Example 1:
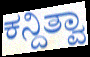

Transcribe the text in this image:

ಕನ್ದಿತ್ವಾ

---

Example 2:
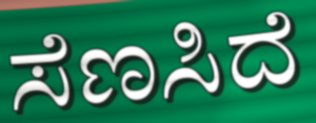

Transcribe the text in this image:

ಸೆಣಸಿದೆ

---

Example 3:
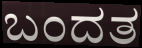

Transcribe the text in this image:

ಬಂದತ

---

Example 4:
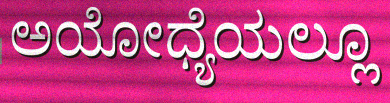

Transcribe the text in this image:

ಅಯೋಧ್ಯೆಯಲ್ಲೂ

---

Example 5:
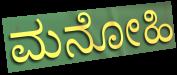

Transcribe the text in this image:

ಮನೋಹಿ